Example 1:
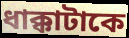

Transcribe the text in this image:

ধাক্কাটাকে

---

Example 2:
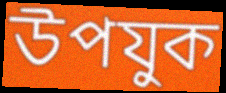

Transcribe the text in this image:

উপযুক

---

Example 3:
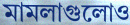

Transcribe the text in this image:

মামলাগুলোও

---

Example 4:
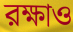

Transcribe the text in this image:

রক্ষাও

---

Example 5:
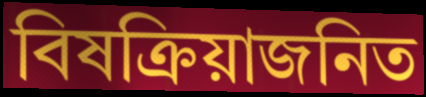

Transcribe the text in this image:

বিষক্রিয়াজনিত